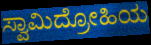
ಸ್ವಾಮಿದ್ರೋಹಿಯ